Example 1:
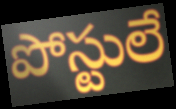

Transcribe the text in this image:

పోస్టులే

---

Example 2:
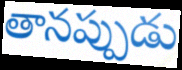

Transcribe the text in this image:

తానప్పుడు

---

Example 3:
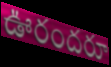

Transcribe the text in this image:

ఊరందరూ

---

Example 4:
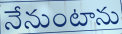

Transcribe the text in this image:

నేనుంటాను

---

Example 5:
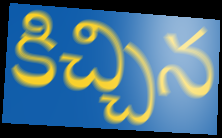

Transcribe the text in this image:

కిచ్చిన